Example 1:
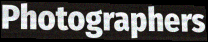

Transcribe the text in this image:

Photographers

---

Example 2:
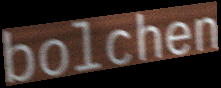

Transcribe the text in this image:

bolchen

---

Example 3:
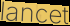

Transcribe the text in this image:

lancet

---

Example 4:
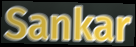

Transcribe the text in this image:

Sankar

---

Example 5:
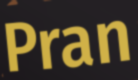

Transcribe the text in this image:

Pran